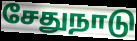
சேதுநாடு